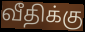
வீதிக்கு